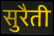
सुरैती